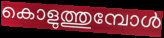
കൊളുത്തുമ്പോൾ